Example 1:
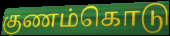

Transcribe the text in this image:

குணம்கொடு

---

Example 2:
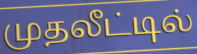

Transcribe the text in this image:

முதலீட்டில்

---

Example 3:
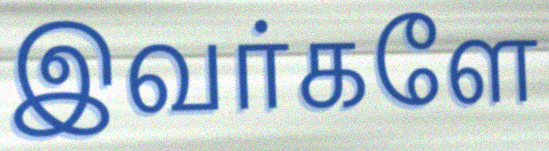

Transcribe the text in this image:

இவர்களே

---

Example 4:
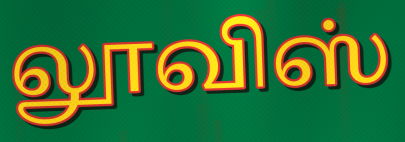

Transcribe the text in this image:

லூவிஸ்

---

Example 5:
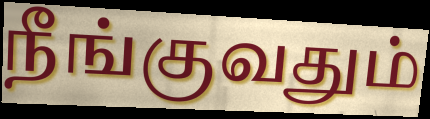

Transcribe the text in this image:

நீங்குவதும்